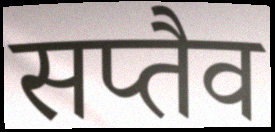
सप्तैव